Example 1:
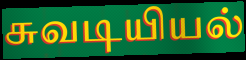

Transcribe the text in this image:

சுவடியியல்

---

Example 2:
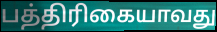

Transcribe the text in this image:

பத்திரிகையாவது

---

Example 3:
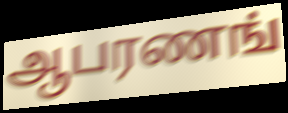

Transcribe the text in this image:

ஆபரணங்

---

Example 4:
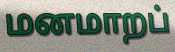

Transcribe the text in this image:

மனமாறப்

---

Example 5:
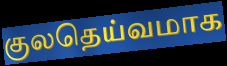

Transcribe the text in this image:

குலதெய்வமாக